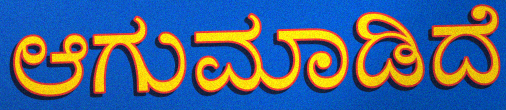
ಆಗುಮಾಡಿದೆ